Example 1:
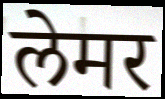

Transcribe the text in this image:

लेमर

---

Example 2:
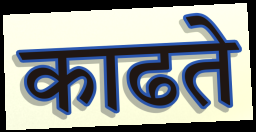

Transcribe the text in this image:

काढते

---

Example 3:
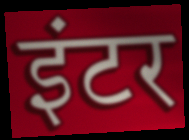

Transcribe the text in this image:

इंटर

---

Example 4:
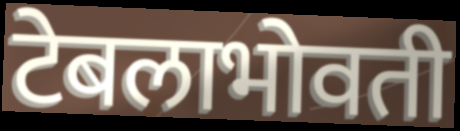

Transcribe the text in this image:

टेबलाभोवती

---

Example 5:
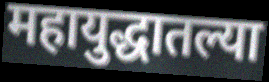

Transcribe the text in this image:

महायुद्धातल्या